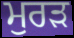
ਮੁਰੜ